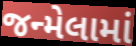
જન્મેલામાં